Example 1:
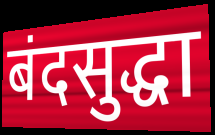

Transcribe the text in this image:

बंदसुद्धा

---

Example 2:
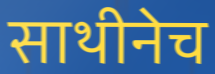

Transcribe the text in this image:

साथीनेच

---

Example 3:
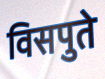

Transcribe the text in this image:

विसपुते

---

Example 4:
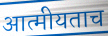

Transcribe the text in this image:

आत्मीयताच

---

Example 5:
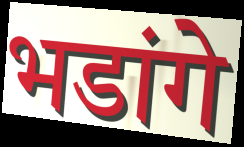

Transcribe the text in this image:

भडांगे